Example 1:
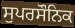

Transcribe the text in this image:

ਸੁਪਰਸੌਨਿਕ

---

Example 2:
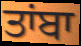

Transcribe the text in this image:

ਤਾਂਬਾ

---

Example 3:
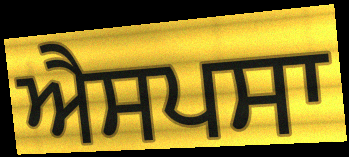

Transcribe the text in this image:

ਐਸਪਸਾ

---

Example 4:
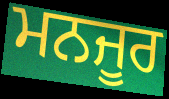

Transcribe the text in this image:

ਮਨਜੂਰ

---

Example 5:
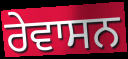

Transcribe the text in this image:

ਰੇਵਾਸਨ